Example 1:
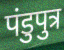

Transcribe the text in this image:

पंडुपुत्र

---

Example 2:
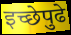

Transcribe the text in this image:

इच्छेपुढे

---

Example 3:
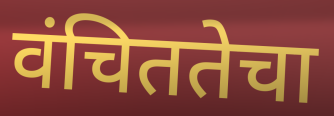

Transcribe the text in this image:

वंचिततेचा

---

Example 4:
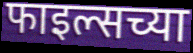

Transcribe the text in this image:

फाइल्सच्या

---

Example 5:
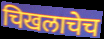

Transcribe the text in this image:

चिखलाचेच